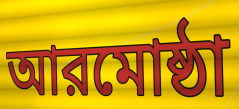
আরমোষ্ঠা